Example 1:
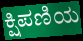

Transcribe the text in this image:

ಕ್ಷಿಪಣಿಯ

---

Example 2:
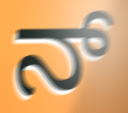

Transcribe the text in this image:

ನ್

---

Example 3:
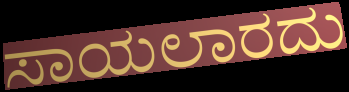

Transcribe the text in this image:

ಸಾಯಲಾರದು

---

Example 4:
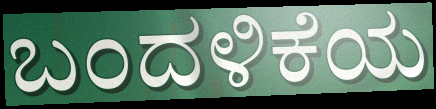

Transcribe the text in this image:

ಬಂದಳಿಕೆಯ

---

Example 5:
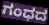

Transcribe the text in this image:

ಗಂಧದ